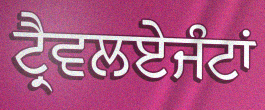
ਟ੍ਰੈਵਲਏਜੰਟਾਂ